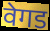
वेगड